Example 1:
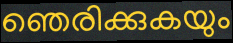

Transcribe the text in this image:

ഞെരിക്കുകയും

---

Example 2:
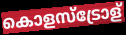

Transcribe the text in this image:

കൊളസ്ട്രോള്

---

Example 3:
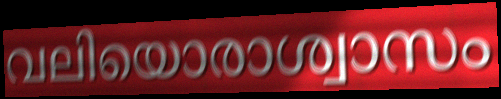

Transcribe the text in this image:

വലിയൊരാശ്വാസം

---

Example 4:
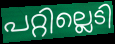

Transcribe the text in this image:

പറ്റില്ലെടി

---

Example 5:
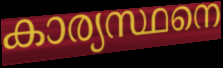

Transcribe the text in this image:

കാര്യസ്ഥനെ